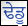
ਢੇਡੂ